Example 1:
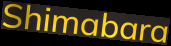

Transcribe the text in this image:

Shimabara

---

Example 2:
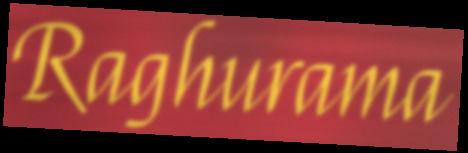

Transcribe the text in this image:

Raghurama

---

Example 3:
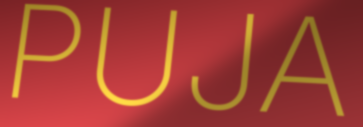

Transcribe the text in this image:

PUJA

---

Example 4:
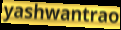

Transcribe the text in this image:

yashwantrao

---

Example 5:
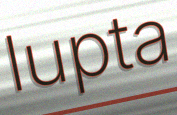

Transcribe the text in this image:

lupta